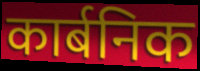
कार्बनिक